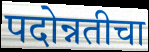
पदोन्नतीचा